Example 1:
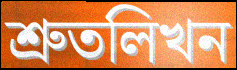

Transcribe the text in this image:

শ্রুতলিখন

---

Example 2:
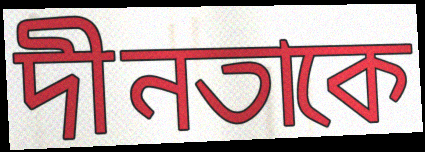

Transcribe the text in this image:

দীনতাকে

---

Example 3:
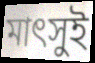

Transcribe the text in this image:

মাৎসুই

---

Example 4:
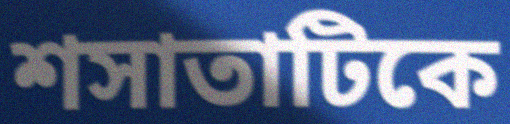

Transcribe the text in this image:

শসাতাটিকে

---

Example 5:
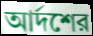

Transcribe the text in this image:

আর্দশের